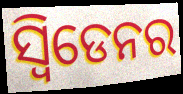
ସ୍ୱିଡେନର